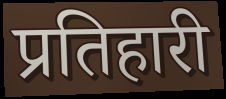
प्रतिहारी